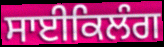
ਸਾਈਕਿਲੰਗ